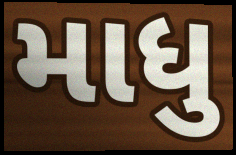
માધુ